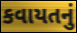
કવાયતનું